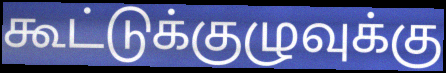
கூட்டுக்குழுவுக்கு